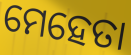
ମେହେତା